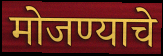
मोजण्याचे